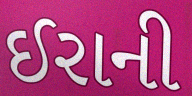
ઈરાની